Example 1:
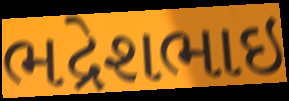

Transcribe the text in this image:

ભદ્રેશભાઇ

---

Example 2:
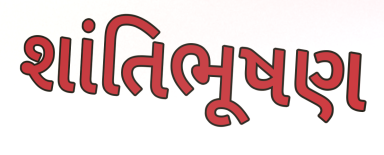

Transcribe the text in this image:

શાંતિભૂષણ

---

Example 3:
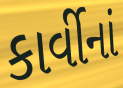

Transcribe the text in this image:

કાર્વીનાં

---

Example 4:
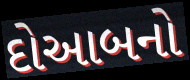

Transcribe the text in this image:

દોઆબનો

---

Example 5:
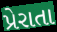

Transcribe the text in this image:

પ્રેરાતા